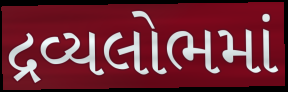
દ્રવ્યલોભમાં